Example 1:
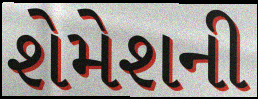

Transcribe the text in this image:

શેમેશની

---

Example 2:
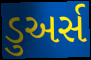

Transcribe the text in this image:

ડુઅર્સ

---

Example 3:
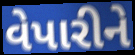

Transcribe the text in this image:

વેપારીને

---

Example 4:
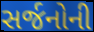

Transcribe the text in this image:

સર્જનોની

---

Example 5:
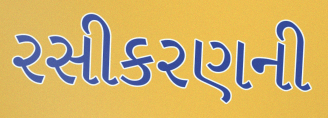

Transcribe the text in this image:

રસીકરણની